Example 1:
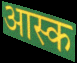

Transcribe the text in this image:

आस्क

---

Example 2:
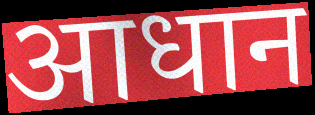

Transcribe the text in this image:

आधान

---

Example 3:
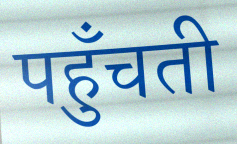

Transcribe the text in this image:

पहुँचती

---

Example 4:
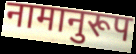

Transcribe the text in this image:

नामानुरूप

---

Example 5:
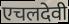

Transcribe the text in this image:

एचलदेवी